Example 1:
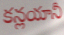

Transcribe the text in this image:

కన్లయానీ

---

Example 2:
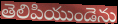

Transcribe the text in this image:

తెలిపియుండెను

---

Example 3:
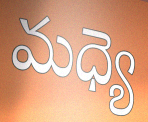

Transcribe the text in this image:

మధ్యె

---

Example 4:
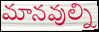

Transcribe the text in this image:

మానవుల్ని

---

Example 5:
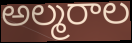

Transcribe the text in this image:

అల్మరాల